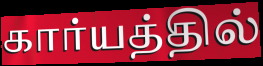
கார்யத்தில்